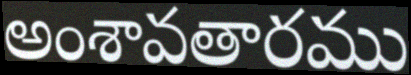
అంశావతారము